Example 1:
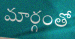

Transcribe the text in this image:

మార్గంతో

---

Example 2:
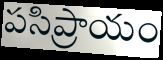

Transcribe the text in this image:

పసిప్రాయం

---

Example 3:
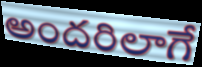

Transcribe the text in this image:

అందరిలాగే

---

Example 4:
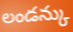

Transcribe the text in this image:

లండన్కు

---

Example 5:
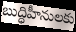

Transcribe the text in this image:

బుద్ధిహీనులకు